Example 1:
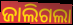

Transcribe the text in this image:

ଜାଲିଗଲା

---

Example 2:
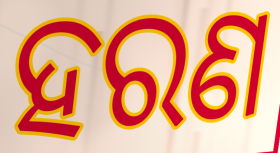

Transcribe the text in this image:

ହରଣ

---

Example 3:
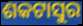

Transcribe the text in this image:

ଶକଟାସୁର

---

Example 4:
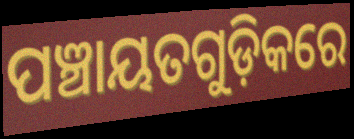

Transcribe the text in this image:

ପଞ୍ଚାୟତଗୁଡ଼ିକରେ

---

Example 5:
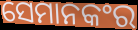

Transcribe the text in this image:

ସେମାନକଂର